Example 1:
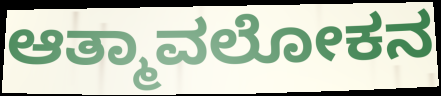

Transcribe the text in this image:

ಆತ್ಮಾವಲೋಕನ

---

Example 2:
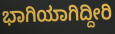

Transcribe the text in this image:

ಭಾಗಿಯಾಗಿದ್ದೀರಿ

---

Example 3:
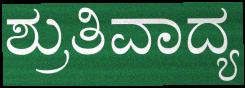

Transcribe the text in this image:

ಶ್ರುತಿವಾದ್ಯ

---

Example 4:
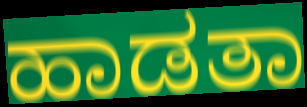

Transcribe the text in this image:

ಹಾಡತಾ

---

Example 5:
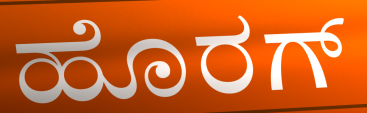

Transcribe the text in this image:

ಹೊರಗ್